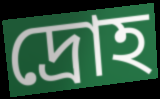
দ্রোহ